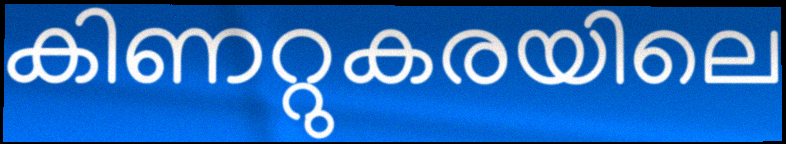
കിണറ്റുകരയിലെ